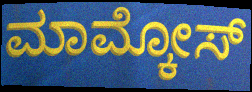
ಮಾಮ್ಕೋಸ್